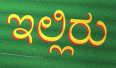
ಇಲ್ಲಿರು